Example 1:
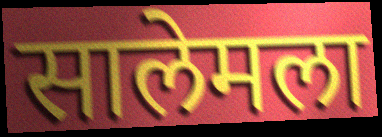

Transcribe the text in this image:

सालेमला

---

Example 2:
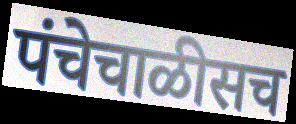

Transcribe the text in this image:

पंचेचाळीसच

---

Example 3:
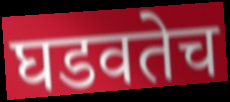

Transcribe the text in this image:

घडवतेच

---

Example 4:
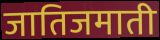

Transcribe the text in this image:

जातिजमाती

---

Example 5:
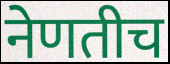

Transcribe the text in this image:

नेणतीच